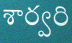
శార్వరి